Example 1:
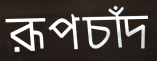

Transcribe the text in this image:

রূপচাঁদ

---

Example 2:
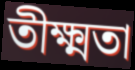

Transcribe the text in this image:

তীক্ষ্মতা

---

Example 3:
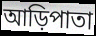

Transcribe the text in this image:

আড়িপাতা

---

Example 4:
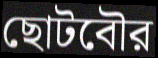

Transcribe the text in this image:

ছোটবৌর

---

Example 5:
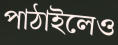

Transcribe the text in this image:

পাঠাইলেও